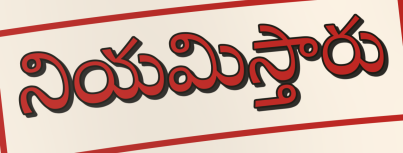
నియమిస్తారు